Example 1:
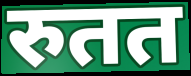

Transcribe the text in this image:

रुतत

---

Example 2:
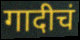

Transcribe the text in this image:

गादीचं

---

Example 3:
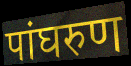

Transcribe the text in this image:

पांघरुण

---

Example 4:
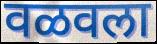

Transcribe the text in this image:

वळवला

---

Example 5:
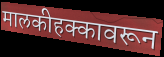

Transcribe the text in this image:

मालकीहक्कावरून